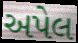
અપેલ